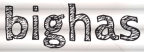
bighas